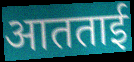
आतताई